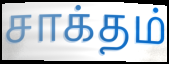
சாக்தம்